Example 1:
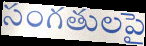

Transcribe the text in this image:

సంగతులపై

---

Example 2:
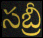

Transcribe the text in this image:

సబ్రీ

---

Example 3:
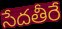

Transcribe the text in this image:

సేదతీరే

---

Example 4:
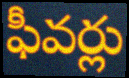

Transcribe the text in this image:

ఫీవర్లు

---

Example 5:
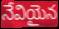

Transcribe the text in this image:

నేవియైన